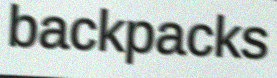
backpacks